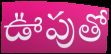
ఊపుతో